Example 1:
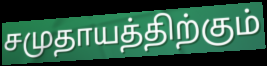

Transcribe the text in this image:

சமுதாயத்திற்கும்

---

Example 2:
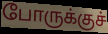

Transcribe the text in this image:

போருக்குச்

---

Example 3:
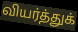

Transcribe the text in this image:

வியர்த்துக்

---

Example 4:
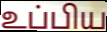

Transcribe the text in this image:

உப்பிய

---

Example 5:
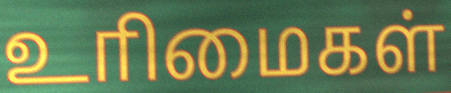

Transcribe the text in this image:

உரிமைகள்